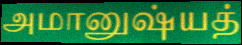
அமானுஷ்யத்